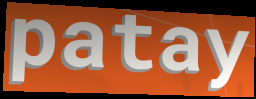
patay